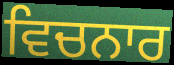
ਵਿਚਨਾਰ